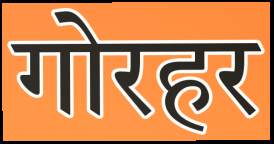
गोरहर